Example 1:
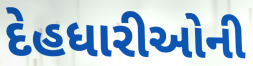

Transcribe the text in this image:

દેહધારીઓની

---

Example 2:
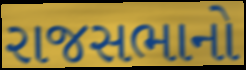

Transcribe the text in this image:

રાજસભાનો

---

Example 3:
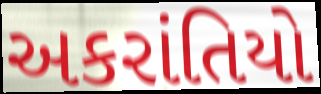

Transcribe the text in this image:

અકરાંતિયો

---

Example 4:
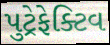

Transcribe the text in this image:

પુટ્રેફેક્ટિવ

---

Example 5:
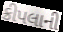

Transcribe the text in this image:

ક્રીપલાની